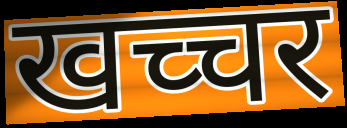
खच्चर